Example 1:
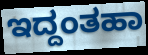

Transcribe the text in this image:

ಇದ್ದಂತಹಾ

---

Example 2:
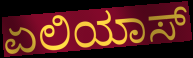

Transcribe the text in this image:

ಏಲಿಯಾಸ್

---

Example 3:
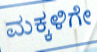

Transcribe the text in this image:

ಮಕ್ಕಳಿಗೇ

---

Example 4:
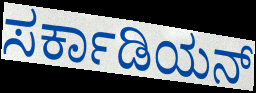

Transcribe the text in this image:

ಸರ್ಕಾಡಿಯನ್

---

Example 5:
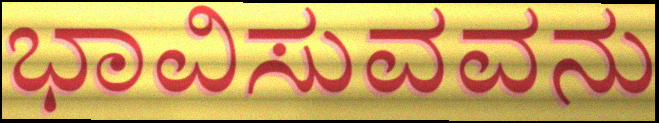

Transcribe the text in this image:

ಭಾವಿಸುವವನು